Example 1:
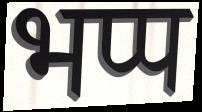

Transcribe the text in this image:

भप्प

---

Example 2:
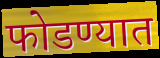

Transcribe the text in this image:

फोडण्यात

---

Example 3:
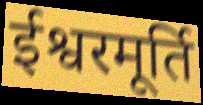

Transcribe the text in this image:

ईश्वरमूर्ति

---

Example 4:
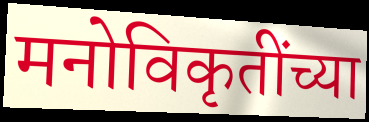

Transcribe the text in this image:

मनोविकृतींच्या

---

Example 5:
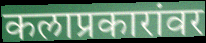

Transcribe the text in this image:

कलाप्रकारांवर